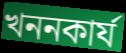
খননকার্য